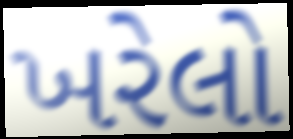
ખરેલો